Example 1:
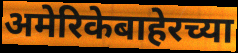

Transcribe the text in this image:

अमेरिकेबाहेरच्या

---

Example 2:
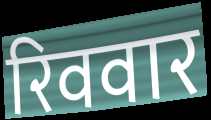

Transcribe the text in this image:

रिववार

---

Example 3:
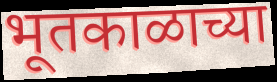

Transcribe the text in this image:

भूतकाळाच्या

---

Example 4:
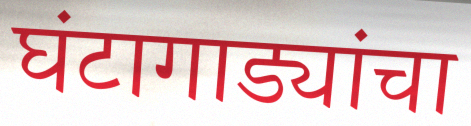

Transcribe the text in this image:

घंटागाड्यांचा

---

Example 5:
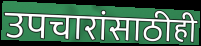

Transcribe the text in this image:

उपचारांसाठीही